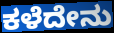
ಕಳೆದೇನು